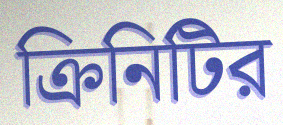
ক্রিনিটির